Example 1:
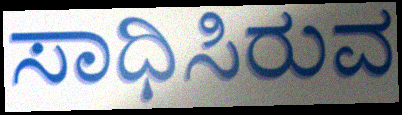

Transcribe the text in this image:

ಸಾಧಿಸಿರುವ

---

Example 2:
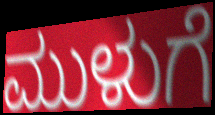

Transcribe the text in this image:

ಮುಳುಗೆ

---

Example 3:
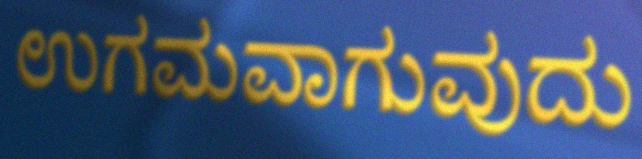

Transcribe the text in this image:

ಉಗಮವಾಗುವುದು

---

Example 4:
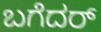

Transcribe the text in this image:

ಬಗೆದರ್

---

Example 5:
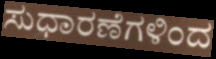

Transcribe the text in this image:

ಸುಧಾರಣೆಗಳಿಂದ